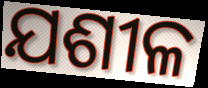
ଯଶୀଳ